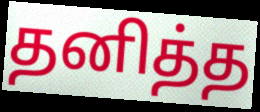
தனித்த